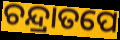
ଚନ୍ଦ୍ରାତପେ